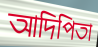
আদিপিতা